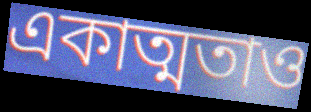
একাত্মতাও